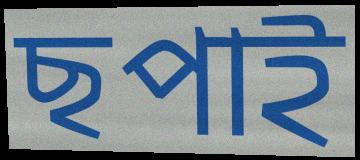
ছপাই